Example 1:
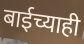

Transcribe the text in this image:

बाईच्याही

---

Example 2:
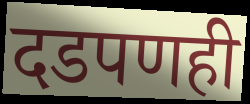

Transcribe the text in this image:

दडपणही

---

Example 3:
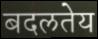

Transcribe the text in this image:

बदलतेय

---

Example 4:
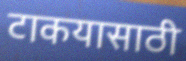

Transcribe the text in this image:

टाकयासाठी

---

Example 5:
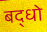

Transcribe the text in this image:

बद्धो